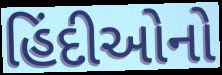
હિંદીઓનો